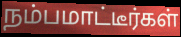
நம்பமாட்டீர்கள்